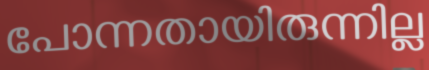
പോന്നതായിരുന്നില്ല